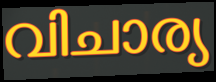
വിചാര്യ